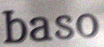
baso